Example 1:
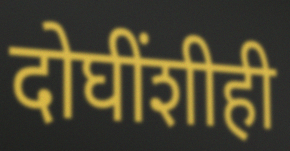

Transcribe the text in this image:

दोघींशीही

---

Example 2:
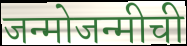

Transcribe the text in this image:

जन्मोजन्मीची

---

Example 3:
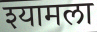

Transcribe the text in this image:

श्यामला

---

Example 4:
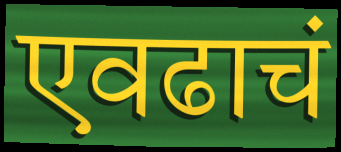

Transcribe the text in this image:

एवढाचं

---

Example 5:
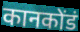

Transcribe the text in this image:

कानकोंडं